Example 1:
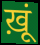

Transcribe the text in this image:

ख़ूं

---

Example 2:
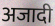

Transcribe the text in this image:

अजादी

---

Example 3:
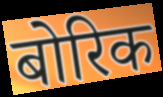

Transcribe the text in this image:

बोरिक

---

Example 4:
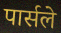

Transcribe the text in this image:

पार्सले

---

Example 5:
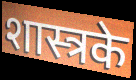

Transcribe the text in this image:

शास्त्रके